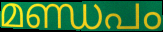
മണ്ഡപം